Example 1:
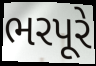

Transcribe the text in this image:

ભરપૂરે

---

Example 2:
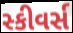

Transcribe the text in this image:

સ્કીવર્સ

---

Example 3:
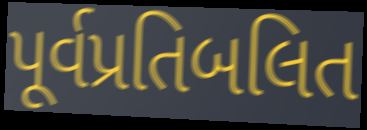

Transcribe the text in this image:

પૂર્વપ્રતિબલિત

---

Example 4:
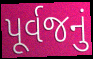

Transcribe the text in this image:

પૂર્વજનું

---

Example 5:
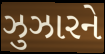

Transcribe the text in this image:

ઝુઝારને